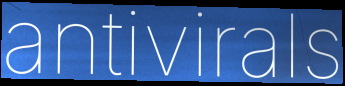
antivirals